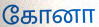
கோனா